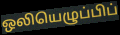
ஒலியெழுப்பிப்